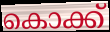
കൊക്ക്